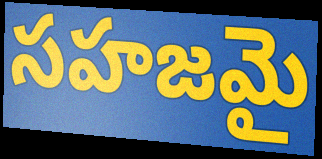
సహజమై